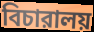
বিচারালয়